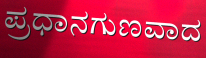
ಪ್ರಧಾನಗುಣವಾದ